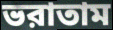
ভরাতাম